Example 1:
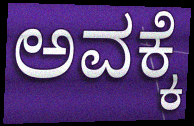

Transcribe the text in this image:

ಅವಕ್ಕೆ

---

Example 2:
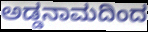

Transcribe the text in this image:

ಅಡ್ಡನಾಮದಿಂದ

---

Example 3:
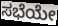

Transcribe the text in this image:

ಸಭೆಯೇ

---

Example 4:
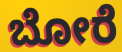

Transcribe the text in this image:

ಬೋರೆ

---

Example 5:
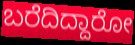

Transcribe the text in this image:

ಬರೆದಿದ್ದಾರೋ